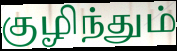
குழிந்தும்